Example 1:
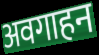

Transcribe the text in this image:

अवगाहन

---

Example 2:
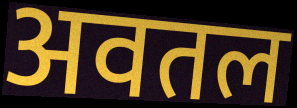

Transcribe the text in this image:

अवतल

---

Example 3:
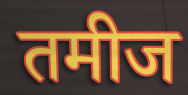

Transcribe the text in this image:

तमीज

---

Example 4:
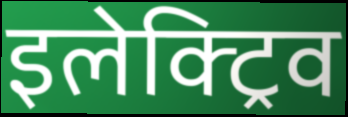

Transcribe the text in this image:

इलेक्ट्रिव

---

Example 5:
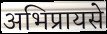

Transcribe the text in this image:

अभिप्रायसे